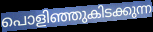
പൊളിഞ്ഞുകിടക്കുന്ന